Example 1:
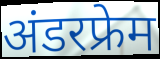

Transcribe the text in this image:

अंडरफ्रेम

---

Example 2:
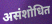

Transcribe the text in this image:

असंशोधित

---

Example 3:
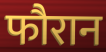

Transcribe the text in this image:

फौरान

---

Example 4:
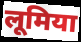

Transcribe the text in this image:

लूमिया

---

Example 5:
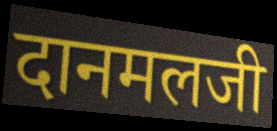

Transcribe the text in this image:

दानमलजी